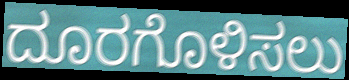
ದೂರಗೊಳಿಸಲು